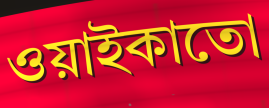
ওয়াইকাতো